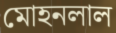
মোহনলাল